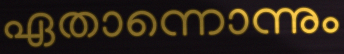
ഏതാന്നൊന്നും